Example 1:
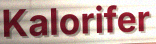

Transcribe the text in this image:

Kalorifer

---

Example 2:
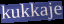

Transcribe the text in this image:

kukkaje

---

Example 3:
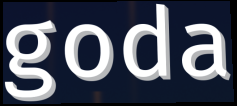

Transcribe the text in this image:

goda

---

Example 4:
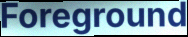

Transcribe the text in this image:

Foreground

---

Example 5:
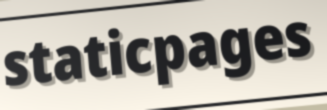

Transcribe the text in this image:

staticpages